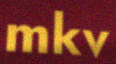
mkv